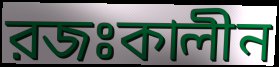
রজঃকালীন